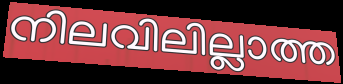
നിലവിലില്ലാത്ത